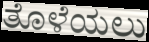
ತೊಳೆಯಲು